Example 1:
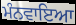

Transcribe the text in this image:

ਮੰਨਵਾਇਆ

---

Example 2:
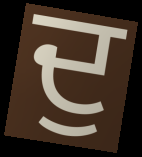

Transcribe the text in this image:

ਦੁ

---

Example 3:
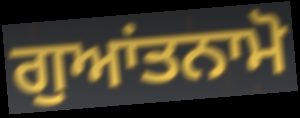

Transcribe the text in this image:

ਗੁਆਂਤਨਾਮੋ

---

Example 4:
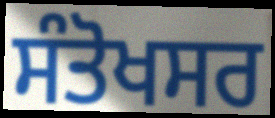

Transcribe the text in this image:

ਸੰਤੋਖਸਰ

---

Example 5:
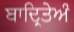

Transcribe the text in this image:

ਬਾਦ੍ਰਿਤੇਅੰ